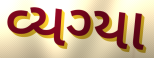
વ્યગ્યા